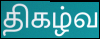
திகழ்வ